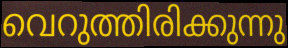
വെറുത്തിരിക്കുന്നു